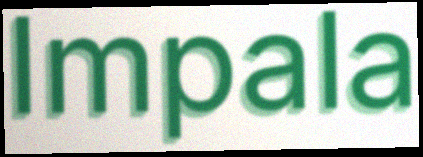
Impala